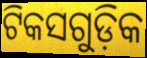
ଟିକସଗୁଡ଼ିକ